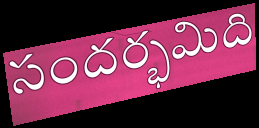
సందర్భమిది